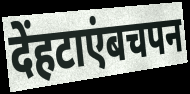
देंहटाएंबचपन